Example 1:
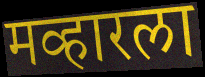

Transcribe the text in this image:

मव्हारला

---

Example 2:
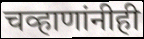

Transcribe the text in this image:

चव्हाणांनीही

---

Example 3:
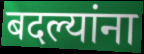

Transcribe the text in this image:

बदल्यांना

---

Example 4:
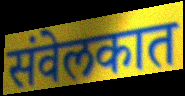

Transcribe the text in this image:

संवेलकात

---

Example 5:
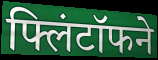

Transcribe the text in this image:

फ्लिंटॉफने